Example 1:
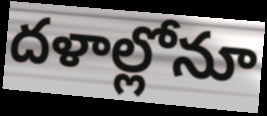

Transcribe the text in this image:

దళాల్లోనూ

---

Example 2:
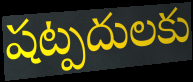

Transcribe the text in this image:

షట్పదులకు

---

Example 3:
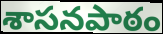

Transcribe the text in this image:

శాసనపాఠం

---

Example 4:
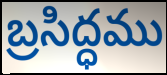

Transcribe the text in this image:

బ్రసిద్ధము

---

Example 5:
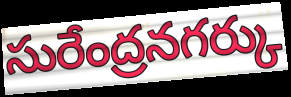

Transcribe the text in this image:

సురేంద్రనగర్కు